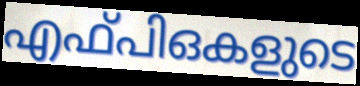
എഫ്പിഒകളുടെ